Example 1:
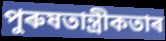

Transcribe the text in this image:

পুৰুষতান্ত্ৰীকতাৰ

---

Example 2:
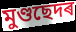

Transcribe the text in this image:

মুণ্ডছেদৰ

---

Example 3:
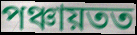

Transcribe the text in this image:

পঞ্চায়তত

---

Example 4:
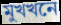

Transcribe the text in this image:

মুখখনে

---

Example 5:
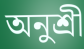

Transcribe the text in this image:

অনুশ্ৰী